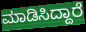
ಮಾಡಿಸಿದ್ದಾರೆ